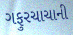
ગફુરચાચાની